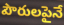
పౌరులపైనే